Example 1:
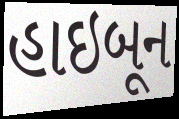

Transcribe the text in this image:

હાઇબૂન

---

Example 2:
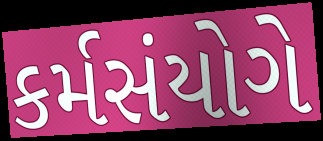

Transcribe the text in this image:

કર્મસંયોગે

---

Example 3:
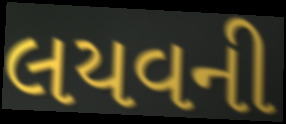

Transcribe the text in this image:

લયવની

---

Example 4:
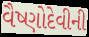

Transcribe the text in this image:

વૈષ્ણોદેવીની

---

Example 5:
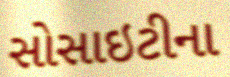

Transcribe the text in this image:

સોસાઇટીના